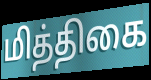
மித்திகை